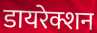
डायरेक्शन